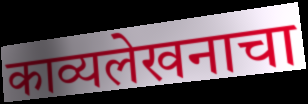
काव्यलेखनाचा